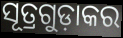
ସୂତ୍ରଗୁଡ଼ାକର